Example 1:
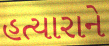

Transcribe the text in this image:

હત્યારાને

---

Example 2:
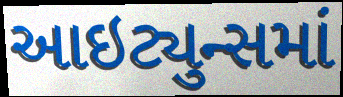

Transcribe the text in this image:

આઇટ્યુન્સમાં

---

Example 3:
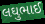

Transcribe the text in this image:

લઘુભાઈ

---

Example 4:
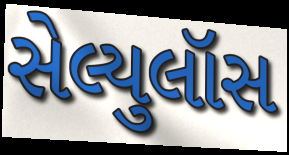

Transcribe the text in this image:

સેલ્યુલૉસ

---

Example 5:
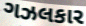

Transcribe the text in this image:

ગઝલકાર